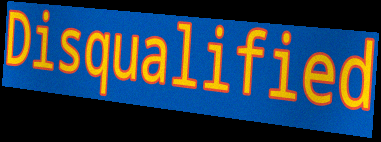
Disqualified